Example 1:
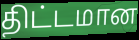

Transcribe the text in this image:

திட்டமான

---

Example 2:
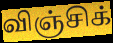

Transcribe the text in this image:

விஞ்சிக்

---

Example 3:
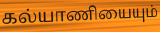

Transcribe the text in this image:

கல்யாணியையும்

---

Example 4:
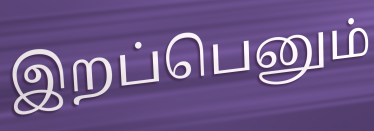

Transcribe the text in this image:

இறப்பெனும்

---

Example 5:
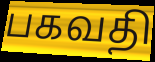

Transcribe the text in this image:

பகவதி